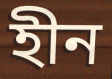
হীন